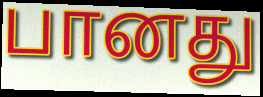
பானது